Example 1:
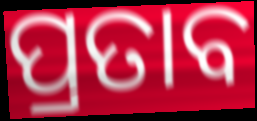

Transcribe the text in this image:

ପ୍ରତାବ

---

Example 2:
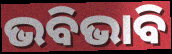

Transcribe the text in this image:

ଭବିଭାବି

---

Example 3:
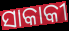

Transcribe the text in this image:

ସାକାକୀ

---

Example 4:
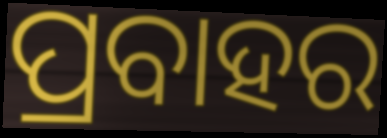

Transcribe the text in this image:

ପ୍ରବାହର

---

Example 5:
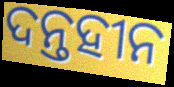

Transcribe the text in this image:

ଦନ୍ତହୀନ